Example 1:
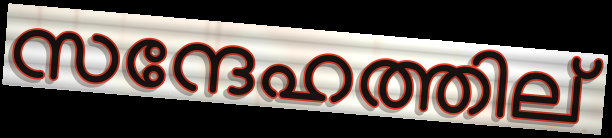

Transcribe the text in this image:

സന്ദേഹത്തില്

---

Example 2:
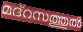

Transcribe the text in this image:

മദ്റസത്തുൽ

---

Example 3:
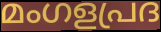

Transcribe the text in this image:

മംഗളപ്രദ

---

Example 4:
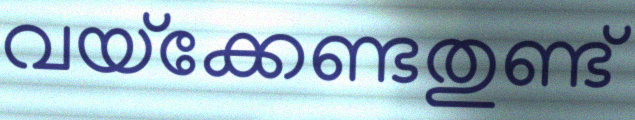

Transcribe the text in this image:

വയ്‌ക്കേണ്ടതുണ്ട്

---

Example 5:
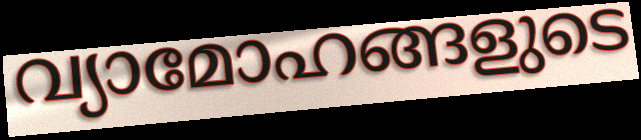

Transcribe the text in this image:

വ്യാമോഹങ്ങളുടെ